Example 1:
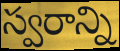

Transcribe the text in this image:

స్వరాన్ని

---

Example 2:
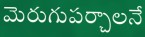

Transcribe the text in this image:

మెరుగుపర్చాలనే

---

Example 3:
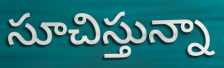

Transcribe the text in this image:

సూచిస్తున్నా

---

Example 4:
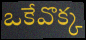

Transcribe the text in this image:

ఒకేవొక్క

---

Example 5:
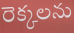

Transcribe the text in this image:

రెక్కలను